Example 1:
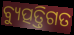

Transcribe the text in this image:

ବ୍ୟୁତ୍ପତ୍ତିଗତ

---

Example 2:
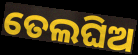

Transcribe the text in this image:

ତେଲଘିଅ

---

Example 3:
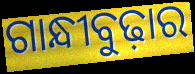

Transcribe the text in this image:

ଗାନ୍ଧୀବୁଢ଼ାର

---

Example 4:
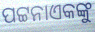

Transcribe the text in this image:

ପଟ୍ଟନାଏକଙ୍କୁ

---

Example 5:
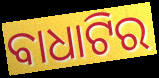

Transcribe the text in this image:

ବାଧାଟିର